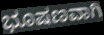
ಭೂಷಣವಾಗಿ